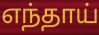
எந்தாய்